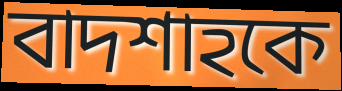
বাদশাহকে